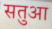
सतुआ